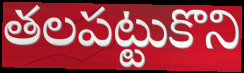
తలపట్టుకొని